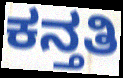
ಕನ್ತತಿ